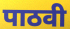
पाठवी